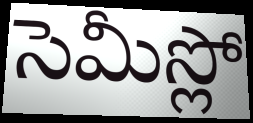
సెమీస్లో